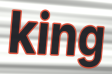
king